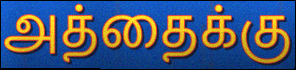
அத்தைக்கு